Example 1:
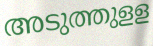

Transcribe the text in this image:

അടുത്തുളള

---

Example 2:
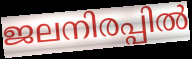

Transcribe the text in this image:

ജലനിരപ്പിൽ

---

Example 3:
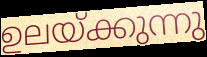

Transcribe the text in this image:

ഉലയ്ക്കുന്നു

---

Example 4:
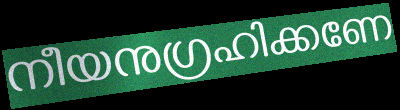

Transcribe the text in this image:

നീയനുഗ്രഹിക്കണേ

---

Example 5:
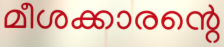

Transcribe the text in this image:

മീശക്കാരന്റെ